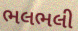
ભલભલી